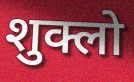
शुक्लो